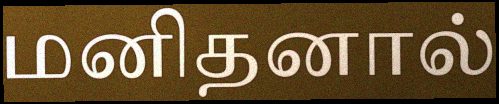
மனிதனால்